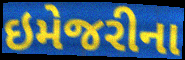
ઇમેજરીના